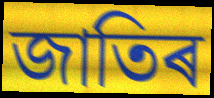
জাতিৰ